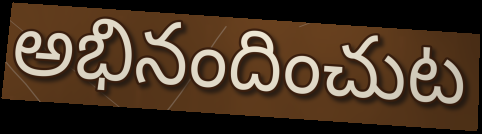
అభినందించుట